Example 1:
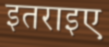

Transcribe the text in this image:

इतराइए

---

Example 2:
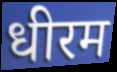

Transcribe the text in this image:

धीरम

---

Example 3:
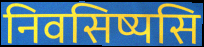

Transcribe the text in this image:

निवसिष्यसि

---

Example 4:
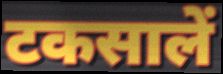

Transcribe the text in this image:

टकसालें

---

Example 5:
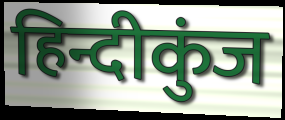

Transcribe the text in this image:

हिन्दीकुंज